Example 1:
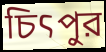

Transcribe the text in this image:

চিৎপুর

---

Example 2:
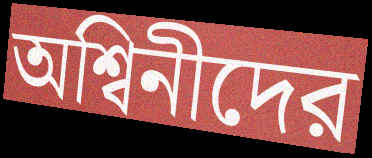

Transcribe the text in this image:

অশ্বিনীদের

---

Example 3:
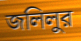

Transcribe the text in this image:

জলিলুর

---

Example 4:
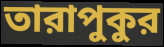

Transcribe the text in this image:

তারাপুকুর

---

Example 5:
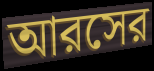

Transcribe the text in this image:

আরসের